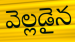
వెల్లడైన